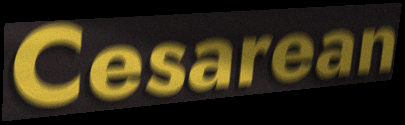
Cesarean